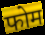
फोम